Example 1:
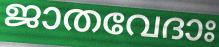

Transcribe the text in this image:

ജാതവേദാഃ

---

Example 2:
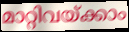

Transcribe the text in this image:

മാറ്റിവയ്ക്കാം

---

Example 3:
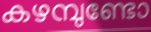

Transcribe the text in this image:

കഴമ്പുണ്ടോ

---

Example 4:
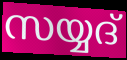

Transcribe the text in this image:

സയ്യദ്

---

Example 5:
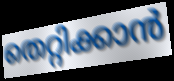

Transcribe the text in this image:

തെറ്റിക്കാൻ